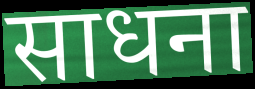
साधना